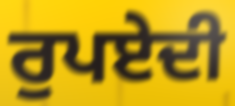
ਰੁਪਏਦੀ